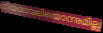
നിയമാവലിയൊന്നുമില്ല